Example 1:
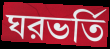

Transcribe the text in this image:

ঘরভর্তি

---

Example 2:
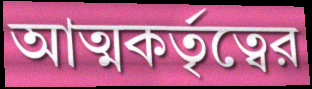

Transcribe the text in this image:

আত্মকর্তৃত্বের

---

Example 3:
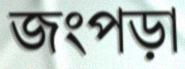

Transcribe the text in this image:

জংপড়া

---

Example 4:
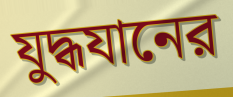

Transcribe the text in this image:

যুদ্ধযানের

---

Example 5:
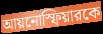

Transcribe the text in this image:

আয়নোস্ফিয়ারকে